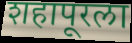
शहापूरला